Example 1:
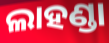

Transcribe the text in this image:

ଲାହଣ୍ଡା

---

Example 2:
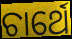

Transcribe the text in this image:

ଚାର୍ଥେ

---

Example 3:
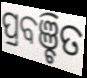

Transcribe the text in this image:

ପ୍ରବଞ୍ଚିତ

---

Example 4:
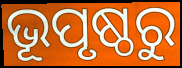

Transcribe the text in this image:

ଭୂପୃଷ୍ଠରୁ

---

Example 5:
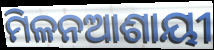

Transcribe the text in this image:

ମିଳନଆଶାୟୀ